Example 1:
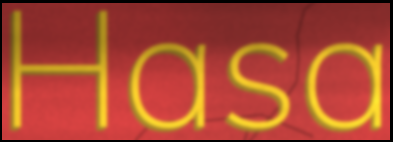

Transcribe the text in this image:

Hasa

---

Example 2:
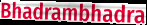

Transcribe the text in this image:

Bhadrambhadra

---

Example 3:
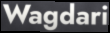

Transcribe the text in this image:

Wagdari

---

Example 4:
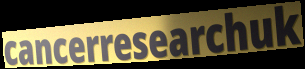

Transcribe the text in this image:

cancerresearchuk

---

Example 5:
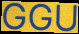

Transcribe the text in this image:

GGU